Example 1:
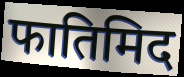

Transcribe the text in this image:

फातिमिद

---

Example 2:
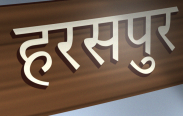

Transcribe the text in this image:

हरसपुर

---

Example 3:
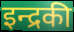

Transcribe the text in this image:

इन्द्रकी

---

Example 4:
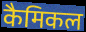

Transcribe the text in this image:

कैमिकल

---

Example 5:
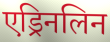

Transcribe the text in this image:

एड्रिनलिन